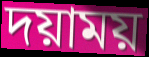
দয়াময়